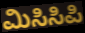
ಮಿಸಿಸಿಪಿ